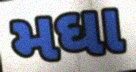
મઘા